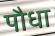
पौधा